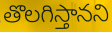
తొలగిస్తానని